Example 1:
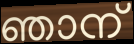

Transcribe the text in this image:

ഞാന്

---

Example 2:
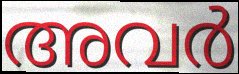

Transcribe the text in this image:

അവർ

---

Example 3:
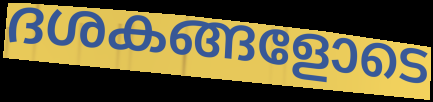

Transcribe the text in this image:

ദശകങ്ങളോടെ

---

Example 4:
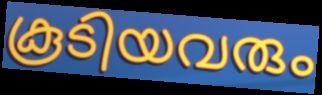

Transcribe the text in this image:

കൂടിയവരും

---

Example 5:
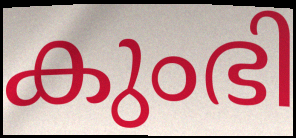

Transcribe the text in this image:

കുംഭി